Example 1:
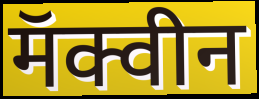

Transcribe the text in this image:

मॅक्वीन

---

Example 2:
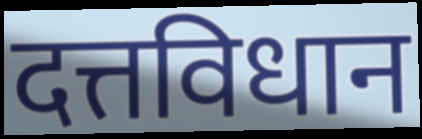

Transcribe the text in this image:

दत्तविधान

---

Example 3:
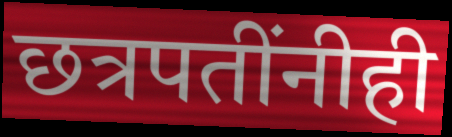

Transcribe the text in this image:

छत्रपतींनीही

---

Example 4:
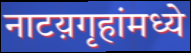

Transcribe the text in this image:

नाटय़गृहांमध्ये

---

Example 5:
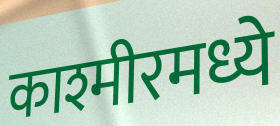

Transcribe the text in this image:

काश्मीरमध्ये